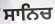
ਸਾਨਿਚ